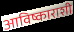
आविष्काराशी